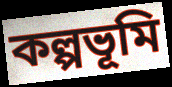
কল্পভূমি